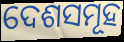
ଦେଶସମୂହ